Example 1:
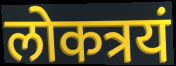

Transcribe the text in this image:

लोकत्रयं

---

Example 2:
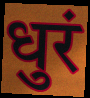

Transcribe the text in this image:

धुरं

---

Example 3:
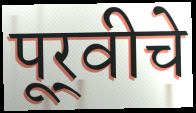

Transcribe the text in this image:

पूर्वीचे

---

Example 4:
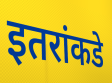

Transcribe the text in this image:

इतरांकडे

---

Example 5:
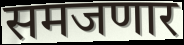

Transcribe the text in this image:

समजणार